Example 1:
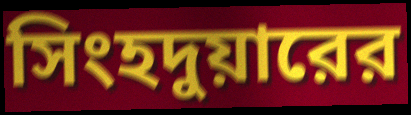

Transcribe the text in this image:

সিংহদুয়ারের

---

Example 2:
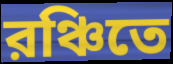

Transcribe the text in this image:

রঞ্চিতে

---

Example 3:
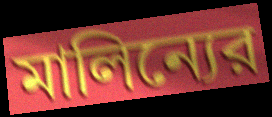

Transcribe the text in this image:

মালিন্যের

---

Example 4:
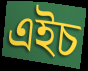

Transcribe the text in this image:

এইচ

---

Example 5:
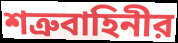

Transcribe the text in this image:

শত্রুবাহিনীর